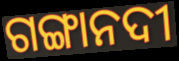
ଗଙ୍ଗାନଦୀ